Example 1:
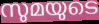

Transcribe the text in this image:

സുമയുടെ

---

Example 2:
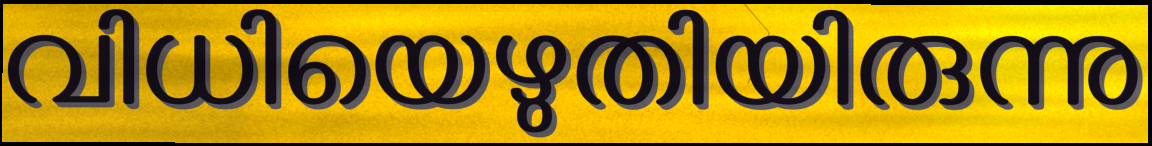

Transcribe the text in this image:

വിധിയെഴുതിയിരുന്നു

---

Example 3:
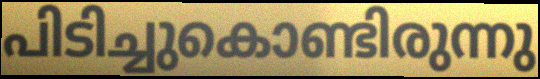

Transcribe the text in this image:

പിടിച്ചുകൊണ്ടിരുന്നു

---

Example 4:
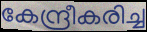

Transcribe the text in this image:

കേന്ദ്രീകരിച്ച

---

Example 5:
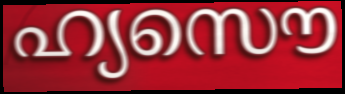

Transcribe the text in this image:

ഹ്യസൌ